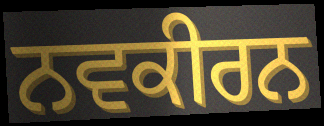
ਨਵਕੀਰਨ